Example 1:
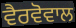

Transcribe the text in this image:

ਵੈਰਵੋਵਾਲ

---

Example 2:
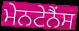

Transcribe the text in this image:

ਮੇਨਟੇਨੈਂਸ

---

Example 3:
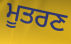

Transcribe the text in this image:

ਮੂਤਰਣ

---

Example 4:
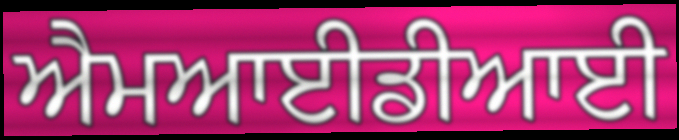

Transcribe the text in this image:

ਐਮਆਈਡੀਆਈ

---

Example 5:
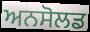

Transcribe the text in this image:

ਅਨਸੋਲਡ